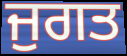
ਜੁਗਤ